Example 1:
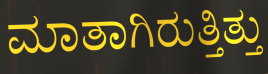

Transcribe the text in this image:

ಮಾತಾಗಿರುತ್ತಿತ್ತು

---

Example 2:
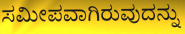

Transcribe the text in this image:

ಸಮೀಪವಾಗಿರುವುದನ್ನು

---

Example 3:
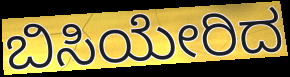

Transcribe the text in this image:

ಬಿಸಿಯೇರಿದ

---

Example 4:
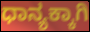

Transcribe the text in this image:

ಧಾನ್ಯಕ್ಕಾಗಿ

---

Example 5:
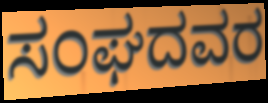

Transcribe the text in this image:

ಸಂಘದವರ